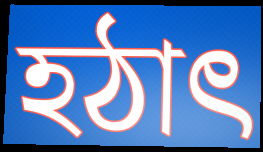
হঠাৎ